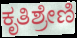
ಕೃತಿಶ್ರೇಣಿ